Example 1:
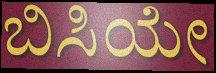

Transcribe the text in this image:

ಬಿಸಿಯೇ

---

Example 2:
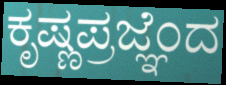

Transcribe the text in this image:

ಕೃಷ್ಣಪ್ರಜ್ಞೆಂದ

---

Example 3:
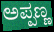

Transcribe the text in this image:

ಅಪ್ಪಣ್ಣ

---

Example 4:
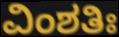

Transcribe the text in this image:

ವಿಂಶತಿಃ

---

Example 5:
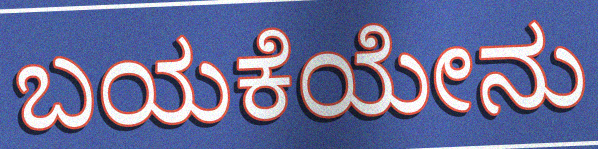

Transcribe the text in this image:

ಬಯಕೆಯೇನು